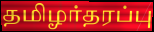
தமிழர்தரப்பு